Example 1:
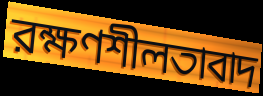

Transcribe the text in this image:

রক্ষণশীলতাবাদ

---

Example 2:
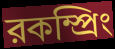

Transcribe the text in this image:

রকম্প্রিং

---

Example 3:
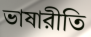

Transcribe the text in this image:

ভাষারীতি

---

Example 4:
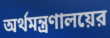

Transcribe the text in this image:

অর্থমন্ত্রণালয়ের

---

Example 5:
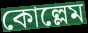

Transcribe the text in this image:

কোল্লেম